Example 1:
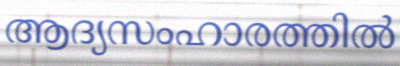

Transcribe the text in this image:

ആദ്യസംഹാരത്തിൽ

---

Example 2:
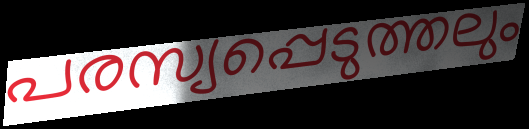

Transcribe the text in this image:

പരസ്യപ്പെടുത്തലും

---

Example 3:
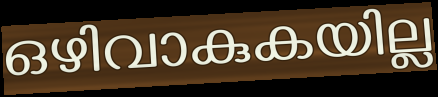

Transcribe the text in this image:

ഒഴിവാകുകയില്ല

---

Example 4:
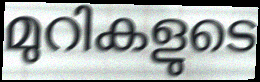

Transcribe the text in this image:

മുറികളുടെ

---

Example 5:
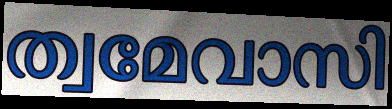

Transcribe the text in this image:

ത്വമേവാസി